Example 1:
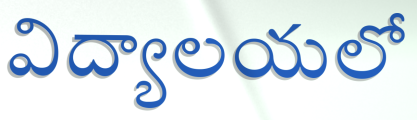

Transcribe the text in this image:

విద్యాలయలో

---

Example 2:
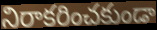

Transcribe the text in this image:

నిరాకరించకుండా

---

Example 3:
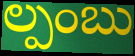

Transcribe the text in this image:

ల్పంబు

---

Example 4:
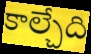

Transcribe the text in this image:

కాల్చేది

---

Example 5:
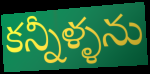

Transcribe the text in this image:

కన్నీళ్ళను